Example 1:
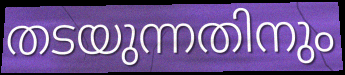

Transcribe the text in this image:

തടയുന്നതിനും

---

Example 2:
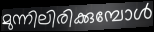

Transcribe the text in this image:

മുന്നിലിരിക്കുമ്പോൾ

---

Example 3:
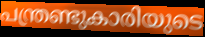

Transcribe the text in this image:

പന്ത്രണ്ടുകാരിയുടെ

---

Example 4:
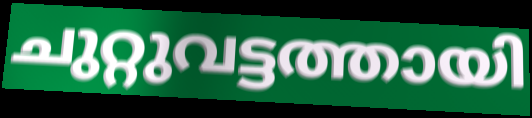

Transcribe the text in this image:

ചുറ്റുവട്ടത്തായി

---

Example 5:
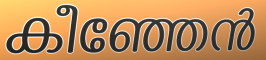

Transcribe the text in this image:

കീഞ്ഞേൻ